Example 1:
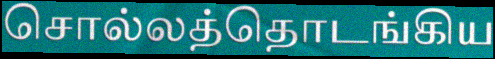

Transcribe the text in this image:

சொல்லத்தொடங்கிய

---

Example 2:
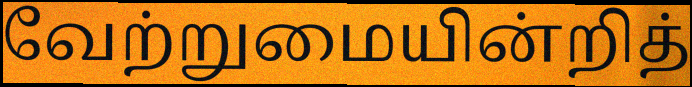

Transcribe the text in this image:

வேற்றுமையின்றித்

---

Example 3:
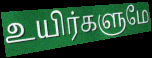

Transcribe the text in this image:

உயிர்களுமே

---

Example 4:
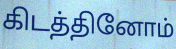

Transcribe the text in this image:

கிடத்தினோம்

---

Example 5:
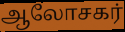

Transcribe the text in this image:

ஆலோசகர்